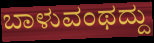
ಬಾಳುವಂಥದ್ದು